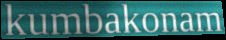
kumbakonam